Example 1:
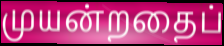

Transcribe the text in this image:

முயன்றதைப்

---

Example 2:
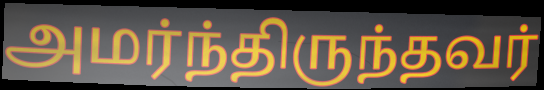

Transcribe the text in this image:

அமர்ந்திருந்தவர்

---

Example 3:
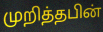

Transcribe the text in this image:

முறித்தபின்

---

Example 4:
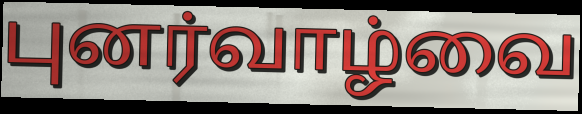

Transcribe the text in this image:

புனர்வாழ்வை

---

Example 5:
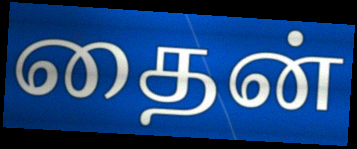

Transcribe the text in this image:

தைன்